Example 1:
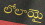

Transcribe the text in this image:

లోలాయై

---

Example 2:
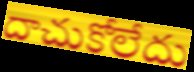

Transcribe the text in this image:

దాచుకోలేదు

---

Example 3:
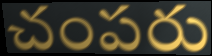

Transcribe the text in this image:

చంపరు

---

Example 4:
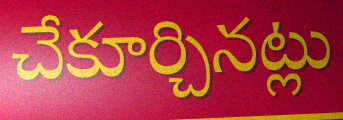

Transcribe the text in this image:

చేకూర్చినట్లు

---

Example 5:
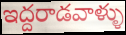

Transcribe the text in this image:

ఇద్దరాడవాళ్ళు